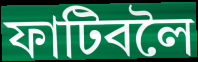
ফাটিবলৈ